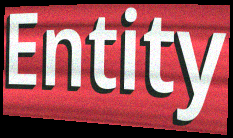
Entity